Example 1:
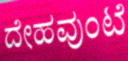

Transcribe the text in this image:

ದೇಹವುಂಟೆ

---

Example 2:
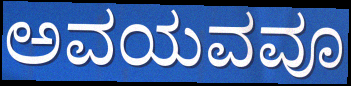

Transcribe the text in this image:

ಅವಯವವೂ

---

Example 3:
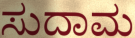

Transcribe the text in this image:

ಸುದಾಮ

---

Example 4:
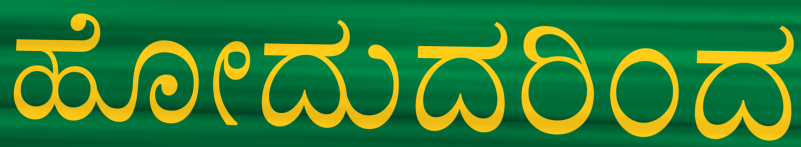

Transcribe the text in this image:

ಹೋದುದರಿಂದ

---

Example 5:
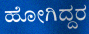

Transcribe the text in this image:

ಹೋಗಿದ್ದರ